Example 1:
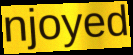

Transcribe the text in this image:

njoyed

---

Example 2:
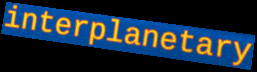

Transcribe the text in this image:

interplanetary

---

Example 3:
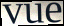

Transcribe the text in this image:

vue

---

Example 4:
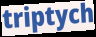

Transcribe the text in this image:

triptych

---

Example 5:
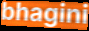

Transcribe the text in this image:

bhagini